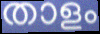
താളം